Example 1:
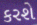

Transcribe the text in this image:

કરશે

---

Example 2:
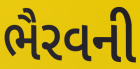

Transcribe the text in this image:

ભૈરવની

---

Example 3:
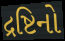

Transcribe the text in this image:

દ્રષ્ટિનો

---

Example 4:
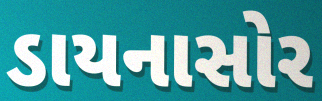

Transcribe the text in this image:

ડાયનાસોર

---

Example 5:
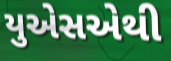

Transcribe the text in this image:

યુએસએથી